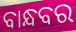
ବାନ୍ଧବର